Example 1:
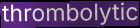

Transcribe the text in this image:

thrombolytic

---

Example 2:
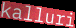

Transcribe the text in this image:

kalluri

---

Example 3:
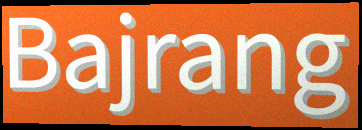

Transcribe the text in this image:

Bajrang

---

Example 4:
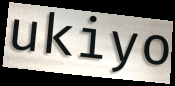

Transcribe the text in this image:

ukiyo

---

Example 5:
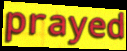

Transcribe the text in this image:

prayed